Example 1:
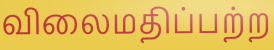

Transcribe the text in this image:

விலைமதிப்பற்ற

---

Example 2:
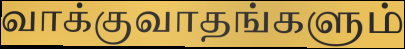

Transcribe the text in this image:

வாக்குவாதங்களும்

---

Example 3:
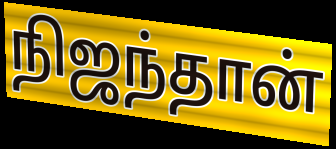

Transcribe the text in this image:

நிஜந்தான்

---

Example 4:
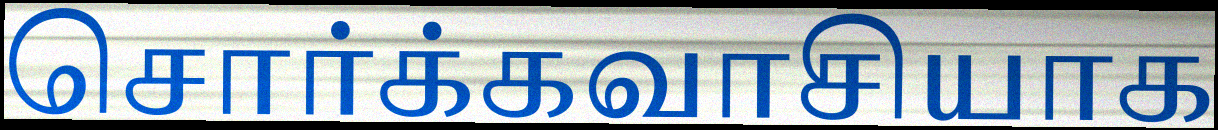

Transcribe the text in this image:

சொர்க்கவாசியாக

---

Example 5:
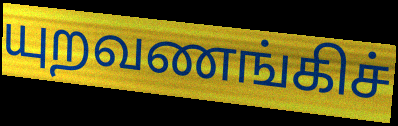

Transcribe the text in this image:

யுறவணங்கிச்